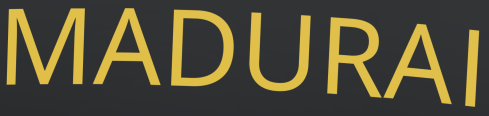
MADURAI